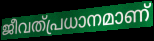
ജീവത്പ്രധാനമാണ്